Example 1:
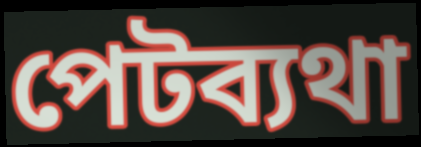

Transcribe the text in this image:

পেটব্যথা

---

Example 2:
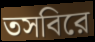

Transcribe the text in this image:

তসবিরে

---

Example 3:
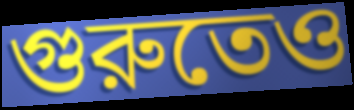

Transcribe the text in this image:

গুরুতেও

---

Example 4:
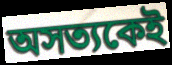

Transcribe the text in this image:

অসত্যকেই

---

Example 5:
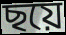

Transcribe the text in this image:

ছয়ে